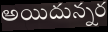
అయిదున్నర